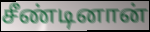
சீண்டினான்